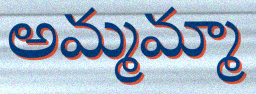
అమ్మమ్మా